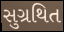
સુગ્રથિત